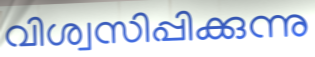
വിശ്വസിപ്പിക്കുന്നു